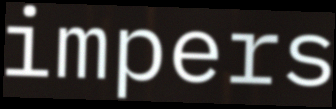
impers